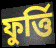
ফুৰ্ত্তি